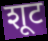
शूट